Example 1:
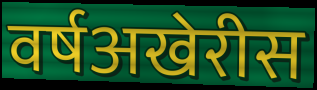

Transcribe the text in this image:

वर्षअखेरीस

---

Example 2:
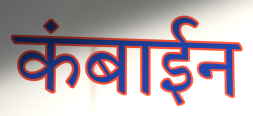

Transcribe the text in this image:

कंबाईन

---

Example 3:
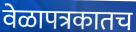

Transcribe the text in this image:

वेळापत्रकातच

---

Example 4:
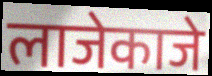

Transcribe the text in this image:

लाजेकाजे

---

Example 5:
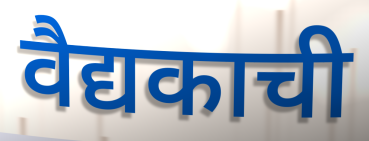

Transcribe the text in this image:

वैद्यकाची